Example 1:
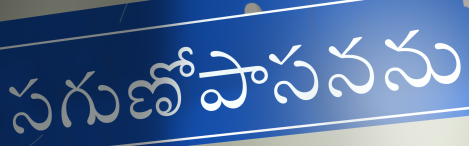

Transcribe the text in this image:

సగుణోపాసనను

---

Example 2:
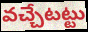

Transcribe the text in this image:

వచ్చేటట్టు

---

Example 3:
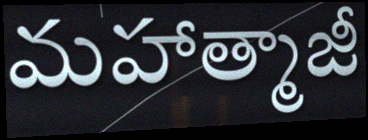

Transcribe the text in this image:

మహాత్మాజీ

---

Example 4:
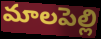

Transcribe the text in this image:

మాలపెల్లి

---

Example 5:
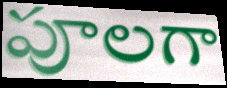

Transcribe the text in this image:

పూలగా